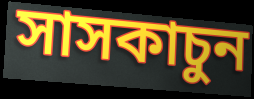
সাসকাচুন